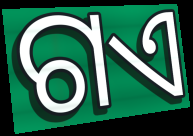
ଗଏ